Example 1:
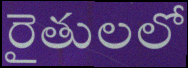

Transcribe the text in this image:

రైతులలో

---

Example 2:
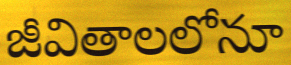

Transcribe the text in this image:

జీవితాలలోనూ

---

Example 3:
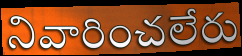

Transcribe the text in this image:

నివారించలేరు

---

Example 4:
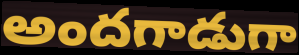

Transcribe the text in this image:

అందగాడుగా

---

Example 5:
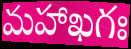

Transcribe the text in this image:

మహాఖగః